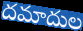
దమాదుల